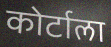
कोर्टाला